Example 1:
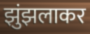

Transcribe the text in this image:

झुंझलाकर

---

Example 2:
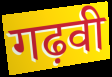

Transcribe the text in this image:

गढ़वी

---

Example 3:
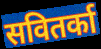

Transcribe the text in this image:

सवितर्का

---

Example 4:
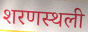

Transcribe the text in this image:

शरणस्थली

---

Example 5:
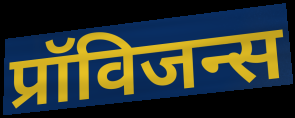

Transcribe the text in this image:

प्रॉविजन्स